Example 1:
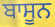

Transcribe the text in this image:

ਬਾਸੂਨ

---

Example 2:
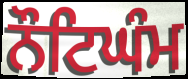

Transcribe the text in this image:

ਨੌਟਿਘੰਮ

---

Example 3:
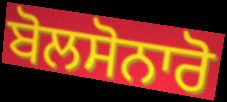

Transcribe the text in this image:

ਬੋਲਸੋਨਾਰੋ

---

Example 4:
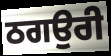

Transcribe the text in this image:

ਠਗਉਰੀ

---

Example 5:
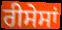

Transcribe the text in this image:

ਰੀਸੇਸਾਂ